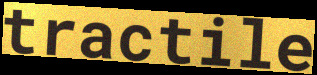
tractile